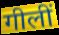
गीलीं